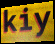
kiy